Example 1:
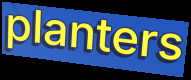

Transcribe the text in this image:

planters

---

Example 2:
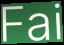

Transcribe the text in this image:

Fai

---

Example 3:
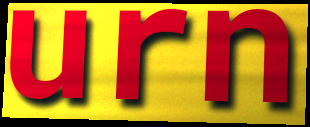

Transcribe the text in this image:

urn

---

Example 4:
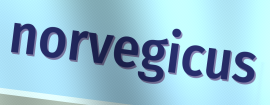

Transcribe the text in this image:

norvegicus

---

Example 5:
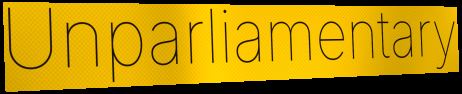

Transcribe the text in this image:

Unparliamentary